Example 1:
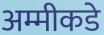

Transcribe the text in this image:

अम्मीकडे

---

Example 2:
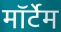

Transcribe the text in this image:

मॉर्टेम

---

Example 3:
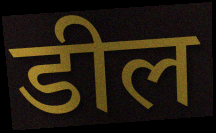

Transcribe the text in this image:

डील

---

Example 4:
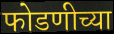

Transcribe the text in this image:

फोडणीच्या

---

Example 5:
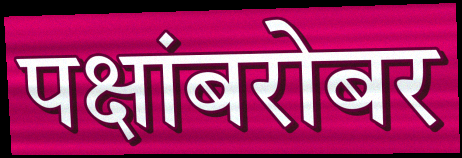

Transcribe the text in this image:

पक्षांबरोबर